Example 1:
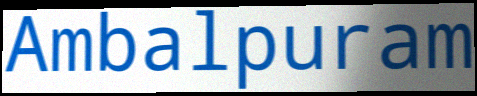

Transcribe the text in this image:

Ambalpuram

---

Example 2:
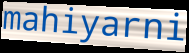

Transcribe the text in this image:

mahiyarni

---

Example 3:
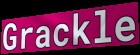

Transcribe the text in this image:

Grackle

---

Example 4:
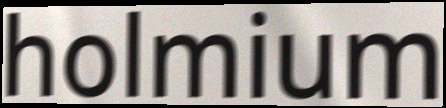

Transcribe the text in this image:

holmium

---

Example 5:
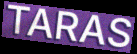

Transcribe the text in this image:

TARAS